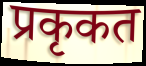
प्रकृकत